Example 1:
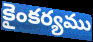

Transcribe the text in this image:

కైంకర్యము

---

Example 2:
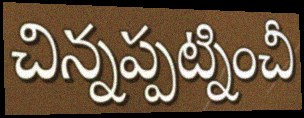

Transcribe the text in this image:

చిన్నప్పట్నించీ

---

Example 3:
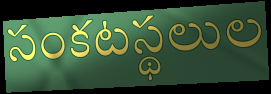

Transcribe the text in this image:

సంకటస్థలుల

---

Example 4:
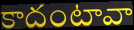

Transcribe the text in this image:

కాదంటావా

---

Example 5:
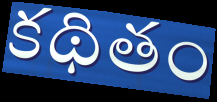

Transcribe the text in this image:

కథితం